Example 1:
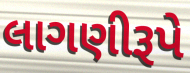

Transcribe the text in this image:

લાગણીરૂપે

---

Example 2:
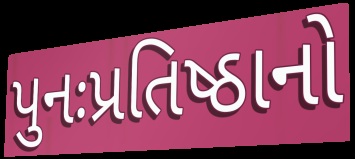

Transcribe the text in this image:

પુનઃપ્રતિષ્ઠાનો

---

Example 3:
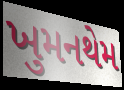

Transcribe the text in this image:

ખુમનથેમ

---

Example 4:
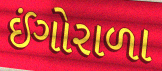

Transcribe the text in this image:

ઈંગોરાળા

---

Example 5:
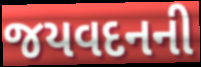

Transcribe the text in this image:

જયવદનની